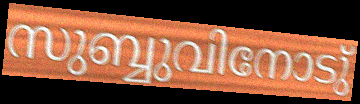
സുബ്ബുവിനോടു്